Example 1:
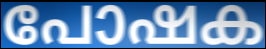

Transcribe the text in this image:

പോഷക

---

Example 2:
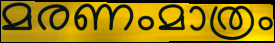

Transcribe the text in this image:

മരണംമാത്രം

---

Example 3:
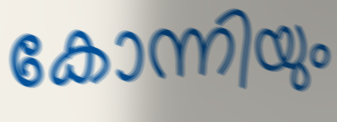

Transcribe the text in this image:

കോന്നിയും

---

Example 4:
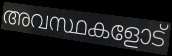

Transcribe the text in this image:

അവസ്ഥകളോട്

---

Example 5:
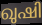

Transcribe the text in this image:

ഖുഷി